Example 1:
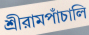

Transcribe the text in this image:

শ্রীরামপাঁচালি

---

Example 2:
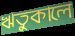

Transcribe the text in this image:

ঋতুকালে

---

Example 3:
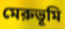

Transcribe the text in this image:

মেরুভূমি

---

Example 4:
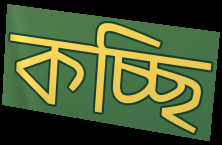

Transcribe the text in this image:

কচ্ছি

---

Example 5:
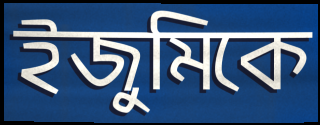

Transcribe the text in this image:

ইজুমিকে